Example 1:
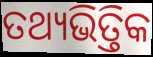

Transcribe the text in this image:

ତଥ୍ୟଭିତ୍ତିକ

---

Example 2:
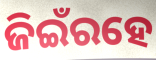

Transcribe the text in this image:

ଜିଇଁରହେ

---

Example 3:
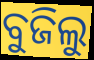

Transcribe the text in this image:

ବୁଜିଲୁ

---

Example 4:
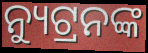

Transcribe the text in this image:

ନ୍ୟୁଟ୍ରନଙ୍କ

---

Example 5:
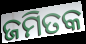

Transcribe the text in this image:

ଜମିତକ